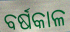
ବର୍ଷକାଳ